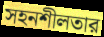
সহনশীলতার